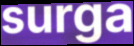
surga